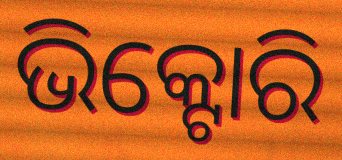
ଭିକ୍ଟୋରି